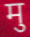
मु